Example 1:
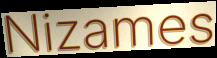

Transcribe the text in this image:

Nizames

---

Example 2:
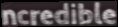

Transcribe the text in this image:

ncredible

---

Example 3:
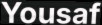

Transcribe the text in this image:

Yousaf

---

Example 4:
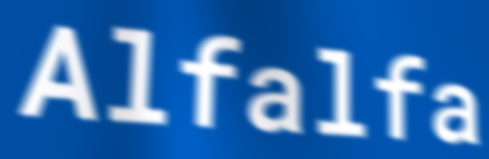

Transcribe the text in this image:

Alfalfa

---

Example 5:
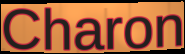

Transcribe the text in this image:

Charon